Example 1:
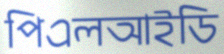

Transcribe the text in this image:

পিএলআইডি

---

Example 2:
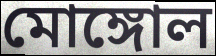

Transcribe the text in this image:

মোঙ্গোল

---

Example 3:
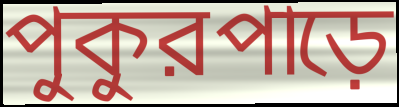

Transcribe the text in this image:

পুকুরপাড়ে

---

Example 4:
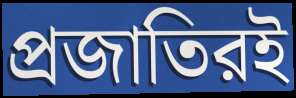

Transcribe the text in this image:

প্রজাতিরই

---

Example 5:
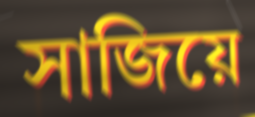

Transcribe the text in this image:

সাজিয়ে